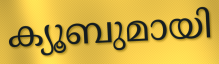
ക്യൂബുമായി